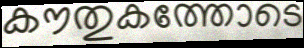
കൗതുകത്തോടെ